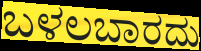
ಬಳಲಬಾರದು